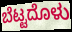
ಬೆಟ್ಟದೊಳು